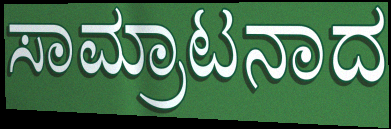
ಸಾಮ್ರಾಟನಾದ